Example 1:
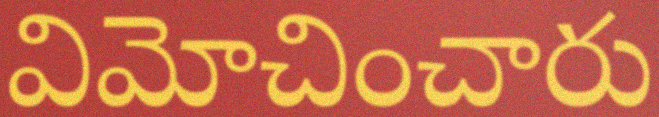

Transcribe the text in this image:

విమోచించారు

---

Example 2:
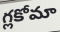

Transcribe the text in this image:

గ్లకోమా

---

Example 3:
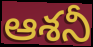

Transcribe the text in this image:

ఆశనీ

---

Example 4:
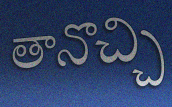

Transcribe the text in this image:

తానొచ్చి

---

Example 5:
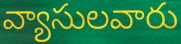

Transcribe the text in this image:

వ్యాసులవారు